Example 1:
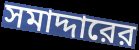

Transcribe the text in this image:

সমাদ্দারের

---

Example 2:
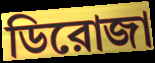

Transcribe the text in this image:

ডিরোজা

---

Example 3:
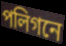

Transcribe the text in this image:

পলিগনে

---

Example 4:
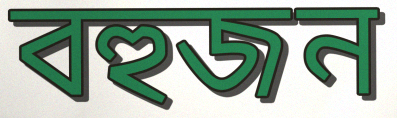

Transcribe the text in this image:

বহুজন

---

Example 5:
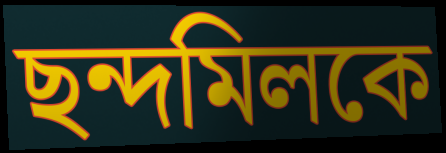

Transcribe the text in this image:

ছন্দমিলকে